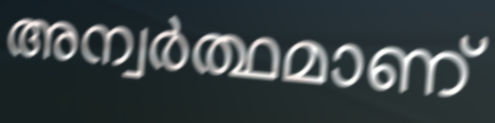
അന്വർത്ഥമാണ്